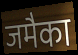
जमैका